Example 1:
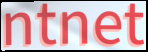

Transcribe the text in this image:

ntnet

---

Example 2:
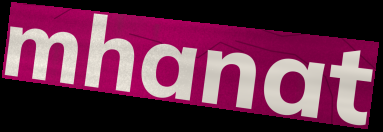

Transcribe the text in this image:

mhanat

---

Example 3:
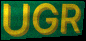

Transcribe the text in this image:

UGR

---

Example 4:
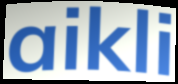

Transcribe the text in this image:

aikli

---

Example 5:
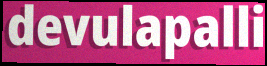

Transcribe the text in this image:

devulapalli